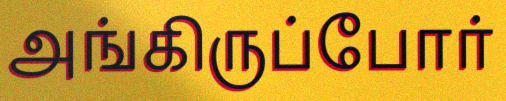
அங்கிருப்போர்